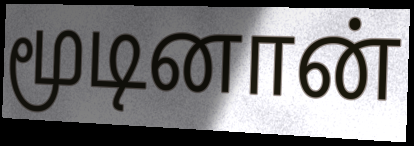
மூடினான்